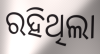
ରହିଥିଲା